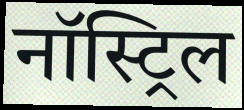
नॉस्ट्रिल